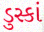
ડુસ્કાં